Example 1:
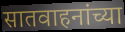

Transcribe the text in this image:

सातवाहनांच्या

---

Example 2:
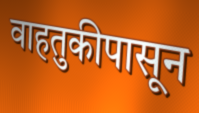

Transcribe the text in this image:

वाहतुकीपासून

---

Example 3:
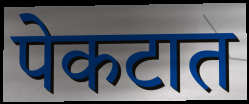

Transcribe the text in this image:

पेकटात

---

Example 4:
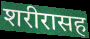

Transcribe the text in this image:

शरीरासह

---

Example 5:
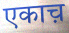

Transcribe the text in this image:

एकाच़